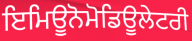
ਇਮਿਊਨੋਮੋਡਿਊਲੇਟਰੀ